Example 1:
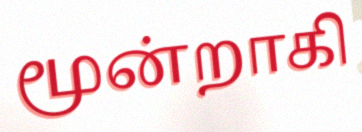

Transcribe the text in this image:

மூன்றாகி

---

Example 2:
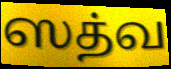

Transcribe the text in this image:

ஸத்வ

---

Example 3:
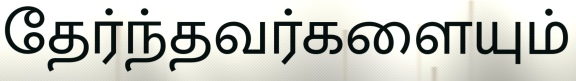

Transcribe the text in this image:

தேர்ந்தவர்களையும்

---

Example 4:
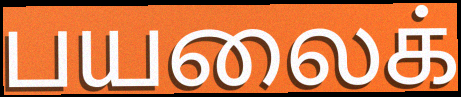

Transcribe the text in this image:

பயலைக்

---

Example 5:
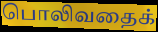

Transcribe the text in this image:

பொலிவதைக்